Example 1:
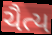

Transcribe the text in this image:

ચૈત્ય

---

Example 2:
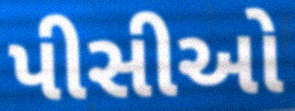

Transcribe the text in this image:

પીસીઓ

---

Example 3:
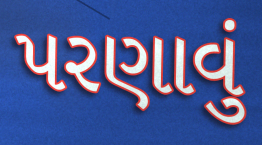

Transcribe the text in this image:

પરણાવું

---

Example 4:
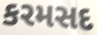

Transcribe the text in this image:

કરમસદ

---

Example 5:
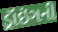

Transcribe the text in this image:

ડ્રૉઇંગની